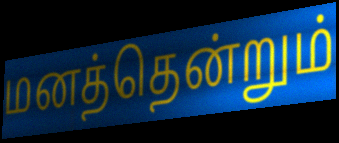
மனத்தென்றும்